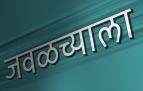
जवळच्याला